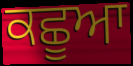
ਕਛੂਆ